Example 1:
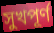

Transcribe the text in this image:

সুখপূর্ণ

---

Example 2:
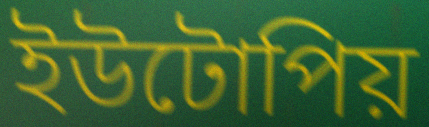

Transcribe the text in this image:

ইউটোপিয়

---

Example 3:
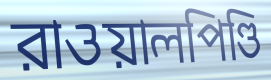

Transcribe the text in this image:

রাওয়ালপিণ্ডি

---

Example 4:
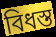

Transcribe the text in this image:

বিধস্ত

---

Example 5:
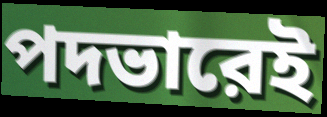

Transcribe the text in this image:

পদভারেই